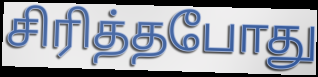
சிரித்தபோது